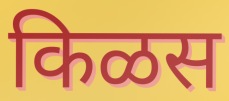
किळस